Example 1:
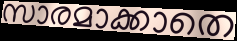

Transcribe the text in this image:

സാരമാക്കാതെ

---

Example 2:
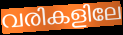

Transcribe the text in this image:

വരികളിലേ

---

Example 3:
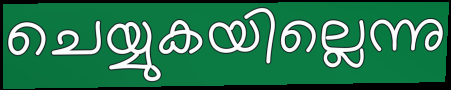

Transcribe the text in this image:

ചെയ്യുകയില്ലെന്നു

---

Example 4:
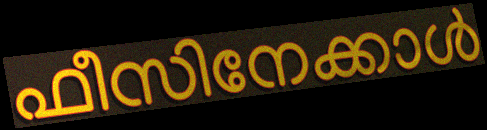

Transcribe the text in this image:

ഫീസിനേക്കാൾ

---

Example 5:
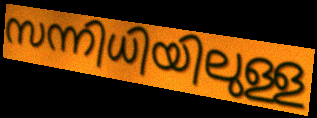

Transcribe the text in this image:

സന്നിധിയിലുള്ള